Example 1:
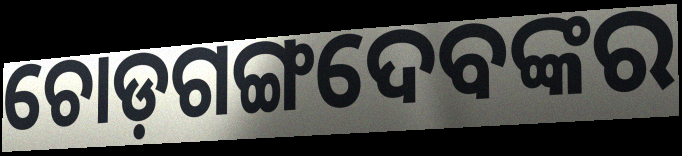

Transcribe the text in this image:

ଚୋଡ଼ଗଙ୍ଗଦେବଙ୍କର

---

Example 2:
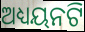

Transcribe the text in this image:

ଅଧ୍ୟୟନଟି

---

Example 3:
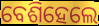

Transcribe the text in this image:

ବେଶିହେଲେ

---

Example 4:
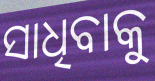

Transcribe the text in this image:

ସାଧିବାକୁ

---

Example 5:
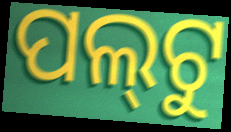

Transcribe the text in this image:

ପଲ୍‍ଟୁ